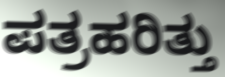
ಪತ್ರಹರಿತ್ತು